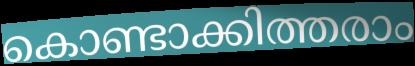
കൊണ്ടാക്കിത്തരാം